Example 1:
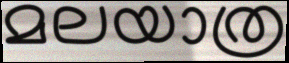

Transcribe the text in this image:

മലയാത്ര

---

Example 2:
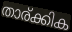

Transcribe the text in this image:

താര്ക്കിക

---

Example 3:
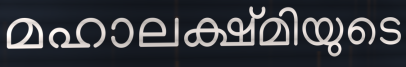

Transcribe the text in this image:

മഹാലക്ഷ്മിയുടെ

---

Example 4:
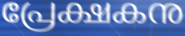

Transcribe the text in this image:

പ്രേക്ഷകനു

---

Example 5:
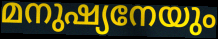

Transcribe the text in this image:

മനുഷ്യനേയും